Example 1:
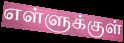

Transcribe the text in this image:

எள்ளுக்குள்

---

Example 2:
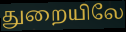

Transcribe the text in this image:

துறையிலே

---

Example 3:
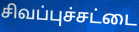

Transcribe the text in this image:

சிவப்புச்சட்டை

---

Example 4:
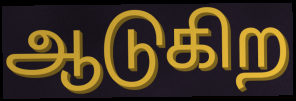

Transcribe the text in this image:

ஆடுகிற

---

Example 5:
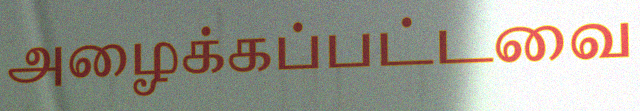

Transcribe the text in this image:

அழைக்கப்பட்டவை